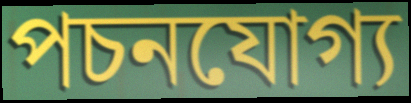
পচনযোগ্য